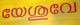
യേശുവേ